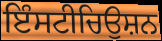
ਇੰਸਟੀਚਿਉਸ਼ਨ